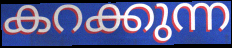
കറക്കുന്ന